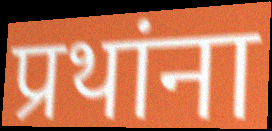
प्रथांना